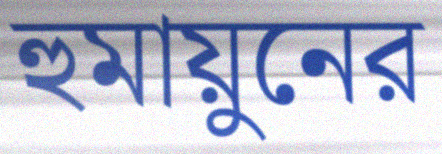
হুমায়ুনের